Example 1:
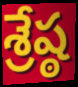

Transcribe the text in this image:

శ్రేష్ఠ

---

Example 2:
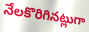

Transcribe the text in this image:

నేలకొరిగినట్లుగా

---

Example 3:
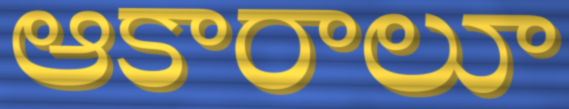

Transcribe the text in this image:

ఆకారాలూ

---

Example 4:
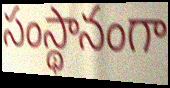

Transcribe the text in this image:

సంస్థానంగా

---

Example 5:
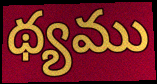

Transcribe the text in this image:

థ్యము